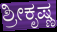
ಶ್ರೀಕೃಷ್ಣ